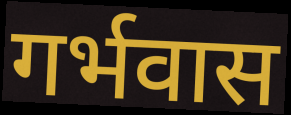
गर्भवास